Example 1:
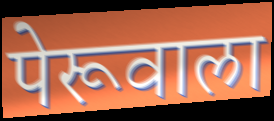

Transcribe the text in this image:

पेरूवाला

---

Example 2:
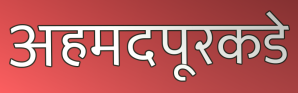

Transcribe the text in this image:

अहमदपूरकडे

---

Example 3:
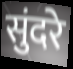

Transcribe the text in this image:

सुंदरे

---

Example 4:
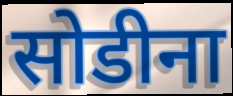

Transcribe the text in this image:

सोडीना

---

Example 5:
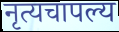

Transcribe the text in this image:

नृत्यचापल्य